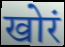
खोरं